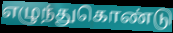
எழுந்துகொண்டு